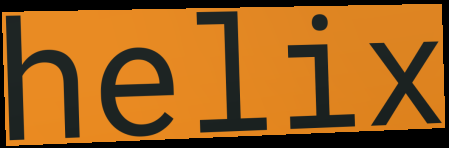
helix